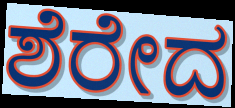
ಶೆರೇದ